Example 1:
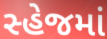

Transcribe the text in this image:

સ્હેજમાં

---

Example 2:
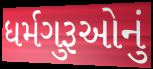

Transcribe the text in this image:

ધર્મગુરૂઓનું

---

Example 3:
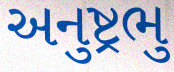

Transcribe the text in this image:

અનુષ્ટ્રભુ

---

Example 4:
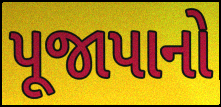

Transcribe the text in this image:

પૂજાપાનો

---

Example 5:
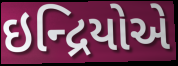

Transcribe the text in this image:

ઇન્દ્રિયોએ